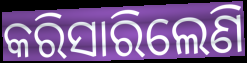
କରିସାରିଲେଣି